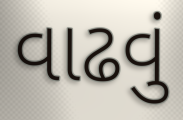
વાઢવું